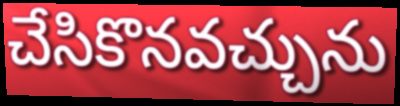
చేసికొనవచ్చును